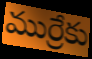
ముర్రేకు